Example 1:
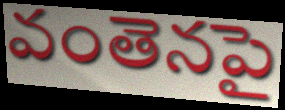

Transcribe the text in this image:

వంతెనపై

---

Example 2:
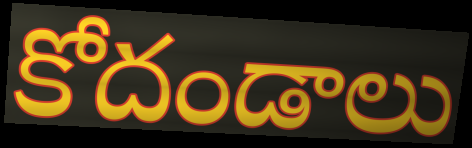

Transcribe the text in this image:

కోదండాలు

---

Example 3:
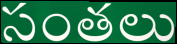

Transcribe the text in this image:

సంతలు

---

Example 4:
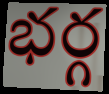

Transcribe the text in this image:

భర్గ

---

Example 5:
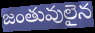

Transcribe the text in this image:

జంతువులైన